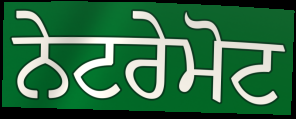
ਨੇਟਰੇਮੋਟ